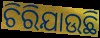
ଚିରିଯାଉଛି